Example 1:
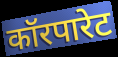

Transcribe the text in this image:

कॉरपारेट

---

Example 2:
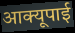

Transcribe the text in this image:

आक्यूपाई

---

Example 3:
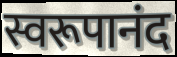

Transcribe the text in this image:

स्वरूपानंद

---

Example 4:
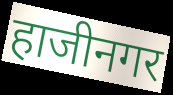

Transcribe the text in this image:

हाजीनगर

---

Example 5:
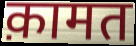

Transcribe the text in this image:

क़ामत